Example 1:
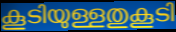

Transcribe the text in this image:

കൂടിയുള്ളതുകൂടി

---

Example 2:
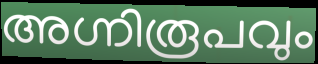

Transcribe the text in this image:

അഗ്നിരൂപവും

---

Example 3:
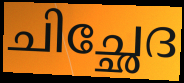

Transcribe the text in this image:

ചിച്ഛേദ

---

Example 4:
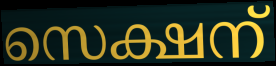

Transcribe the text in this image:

സെക്ഷന്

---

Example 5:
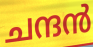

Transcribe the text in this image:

ചന്ദൻ